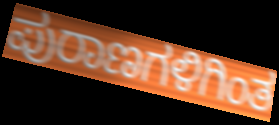
ಪುರಾಣಗಳಿಗಿಂತ